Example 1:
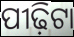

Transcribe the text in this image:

ପୀଢ଼ିଟା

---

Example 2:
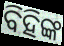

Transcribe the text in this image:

ବିହିଙ୍କ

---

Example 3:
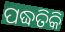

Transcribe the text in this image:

ପଦ୍ଧତିକି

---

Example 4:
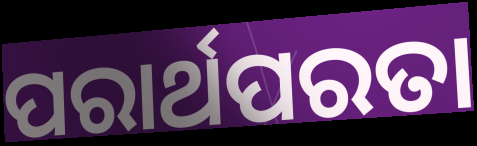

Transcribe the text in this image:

ପରାର୍ଥପରତା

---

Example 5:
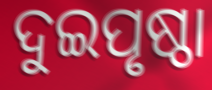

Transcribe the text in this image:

ଦୁଇପୃଷ୍ଠା